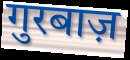
गुरबाज़